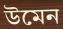
উমেন